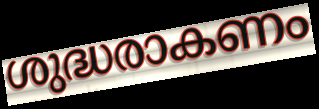
ശുദ്ധരാകണം